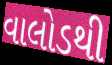
વાલોડથી